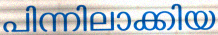
പിന്നിലാക്കിയ